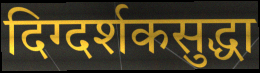
दिग्दर्शकसुद्धा